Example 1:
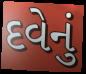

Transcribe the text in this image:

દવેનું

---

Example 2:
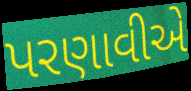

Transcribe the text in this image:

પરણાવીએ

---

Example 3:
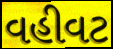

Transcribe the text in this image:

વહીવટ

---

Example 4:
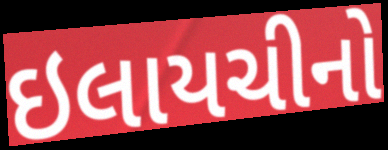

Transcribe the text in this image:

ઇલાયચીનો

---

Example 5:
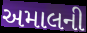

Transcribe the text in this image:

અમાલની